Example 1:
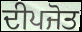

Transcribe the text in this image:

ਦੀਪਜੋਤ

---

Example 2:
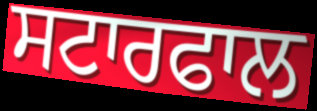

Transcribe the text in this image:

ਸਟਾਰਫਾਲ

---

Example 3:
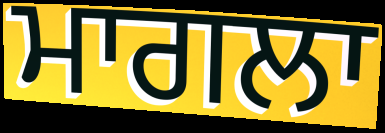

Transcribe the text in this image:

ਮਾਗਲਾ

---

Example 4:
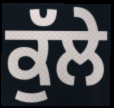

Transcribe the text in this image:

ਕੁੱਲੇ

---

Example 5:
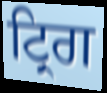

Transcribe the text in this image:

ਟ੍ਰਿਗ